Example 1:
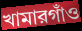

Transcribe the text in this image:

খামারগাঁও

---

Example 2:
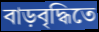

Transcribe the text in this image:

বাড়বৃদ্ধিতে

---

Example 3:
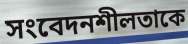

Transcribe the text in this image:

সংবেদনশীলতাকে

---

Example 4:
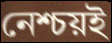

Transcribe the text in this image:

নেশ্চয়ই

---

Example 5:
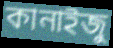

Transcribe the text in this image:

কানাইজু